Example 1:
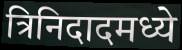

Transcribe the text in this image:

त्रिनिदादमध्ये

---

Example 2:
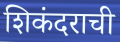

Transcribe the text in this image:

शिकंदराची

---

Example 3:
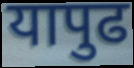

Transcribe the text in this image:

यापुढ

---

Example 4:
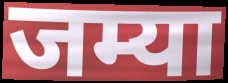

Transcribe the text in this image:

जम्या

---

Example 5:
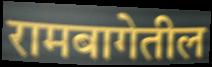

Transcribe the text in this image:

रामबागेतील